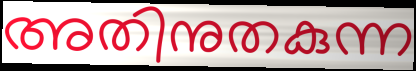
അതിനുതകുന്ന